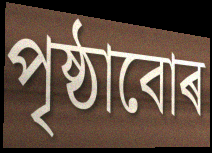
পৃষ্ঠাবোৰ